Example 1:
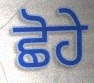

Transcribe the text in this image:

ਛੋਹੇ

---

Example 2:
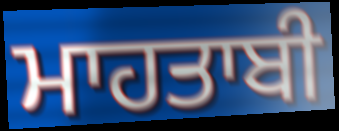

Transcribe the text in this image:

ਮਾਹਤਾਬੀ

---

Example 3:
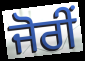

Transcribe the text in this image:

ਜੋਰੀਂ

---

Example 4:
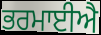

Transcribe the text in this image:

ਭਰਮਾਈਐ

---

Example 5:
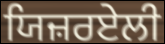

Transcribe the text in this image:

ਯਿਜ਼ਰਏਲੀ